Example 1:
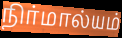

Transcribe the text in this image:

நிர்மால்யம்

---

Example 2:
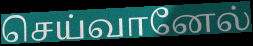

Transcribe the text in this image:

செய்வானேல்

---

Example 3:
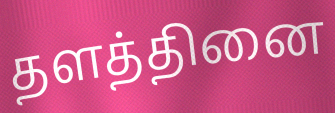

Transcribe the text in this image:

தளத்தினை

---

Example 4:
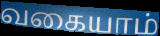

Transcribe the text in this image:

வகையாம்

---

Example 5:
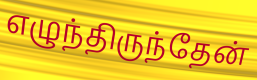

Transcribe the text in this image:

எழுந்திருந்தேன்